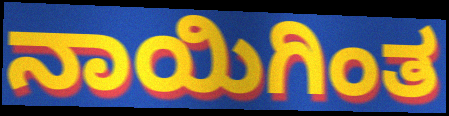
ನಾಯಿಗಿಂತ